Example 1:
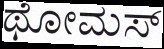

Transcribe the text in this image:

ಥೋಮಸ್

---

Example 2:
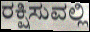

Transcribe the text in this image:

ರಕ್ಷಿಸುವಲ್ಲಿ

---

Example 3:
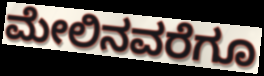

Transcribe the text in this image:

ಮೇಲಿನವರೆಗೂ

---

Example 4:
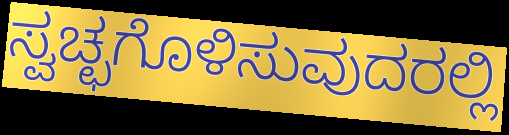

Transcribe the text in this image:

ಸ್ವಚ್ಛಗೊಳಿಸುವುದರಲ್ಲಿ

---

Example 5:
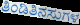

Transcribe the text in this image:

ತಿಂಡಿತಿನಸುಗಳ